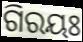
ଗିରୟଃ